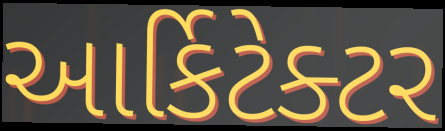
આર્કિટેક્ટર